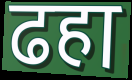
ढहा